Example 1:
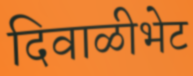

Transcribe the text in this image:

दिवाळीभेट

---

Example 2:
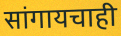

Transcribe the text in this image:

सांगायचाही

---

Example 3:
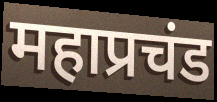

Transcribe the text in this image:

महाप्रचंड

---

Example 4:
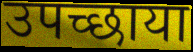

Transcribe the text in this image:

उपच्छाया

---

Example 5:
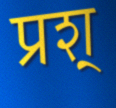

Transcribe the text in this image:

प्रश्